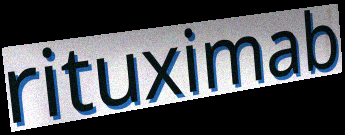
rituximab